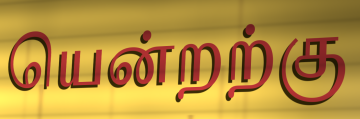
யென்றற்கு